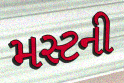
મસ્ટની